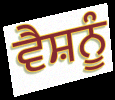
ਵੈਸ਼ਨੂੰ